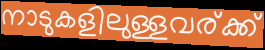
നാടുകളിലുള്ളവര്ക്ക്